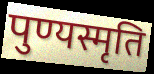
पुण्यस्मृति